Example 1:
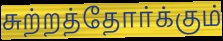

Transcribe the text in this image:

சுற்றத்தோர்க்கும்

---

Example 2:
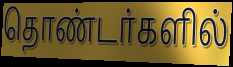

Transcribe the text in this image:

தொண்டர்களில்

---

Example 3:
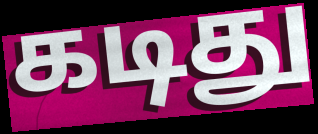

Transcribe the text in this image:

கடிது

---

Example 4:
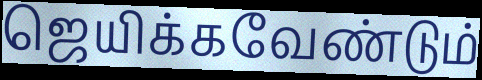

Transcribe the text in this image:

ஜெயிக்கவேண்டும்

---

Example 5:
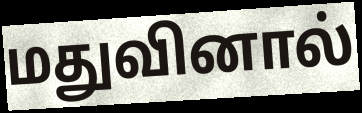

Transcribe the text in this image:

மதுவினால்